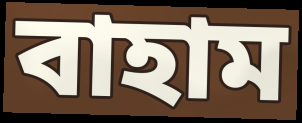
বাহাম